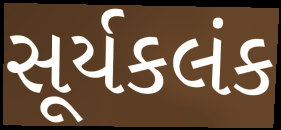
સૂર્યકલંક